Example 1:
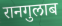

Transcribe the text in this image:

रानगुलाब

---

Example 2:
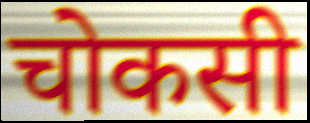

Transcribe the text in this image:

चोकसी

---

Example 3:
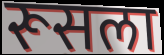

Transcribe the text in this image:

रूसला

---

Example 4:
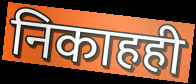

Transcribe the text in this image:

निकाहही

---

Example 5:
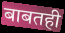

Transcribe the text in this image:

बाबतही